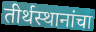
तीर्थस्थानांचा